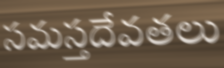
సమస్తదేవతలు